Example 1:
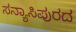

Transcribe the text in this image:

ಸನ್ಯಾಸಿಪುರದ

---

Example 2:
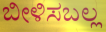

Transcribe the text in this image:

ಬೀಳಿಸಬಲ್ಲ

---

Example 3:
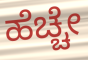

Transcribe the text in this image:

ಹೆಚ್ಚೇ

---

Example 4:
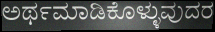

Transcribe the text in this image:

ಅರ್ಥಮಾಡಿಕೊಳ್ಳುವುದರ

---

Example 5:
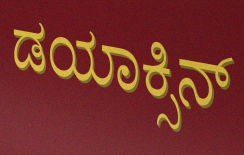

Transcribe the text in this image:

ಡಯಾಕ್ಸಿನ್